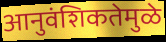
आनुवंशिकतेमुळे